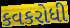
કવકરોધી